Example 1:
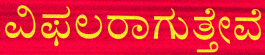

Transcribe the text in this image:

ವಿಫಲರಾಗುತ್ತೇವೆ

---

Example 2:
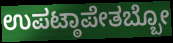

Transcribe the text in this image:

ಉಪಟ್ಠಾಪೇತಬ್ಬೋ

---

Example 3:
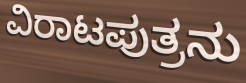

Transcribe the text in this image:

ವಿರಾಟಪುತ್ರನು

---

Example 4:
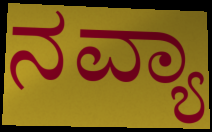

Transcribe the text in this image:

ನವ್ಯಾ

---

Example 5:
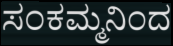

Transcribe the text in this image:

ಸಂಕಮ್ಮನಿಂದ